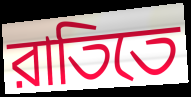
রাতিতে